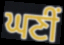
ਘਣੀਂ